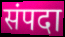
संपदा